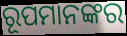
ରୂପମାନଙ୍କର